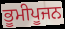
ਭੂਮੀਪੂਜਨ